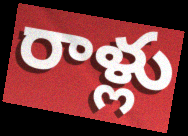
రాళ్లు